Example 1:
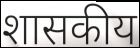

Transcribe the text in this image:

शासकीय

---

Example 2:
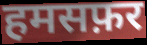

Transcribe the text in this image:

हमसफ़र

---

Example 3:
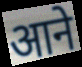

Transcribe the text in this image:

आने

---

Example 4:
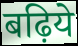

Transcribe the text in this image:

बढ़िये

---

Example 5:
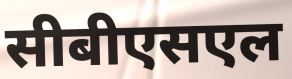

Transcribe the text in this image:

सीबीएसएल